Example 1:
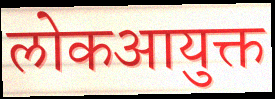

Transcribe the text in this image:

लोकआयुक्त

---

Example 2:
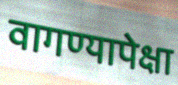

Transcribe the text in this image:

वागण्यापेक्षा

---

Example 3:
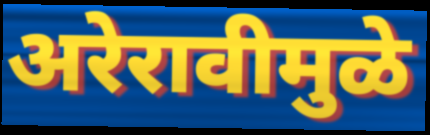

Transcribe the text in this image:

अरेरावीमुळे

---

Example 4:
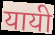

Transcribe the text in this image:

यायी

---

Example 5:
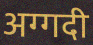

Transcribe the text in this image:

अग्गदी